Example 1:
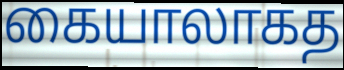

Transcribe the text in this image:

கையாலாகத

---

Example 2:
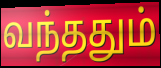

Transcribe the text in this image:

வந்ததும்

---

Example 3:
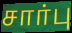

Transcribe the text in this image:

சார்பு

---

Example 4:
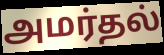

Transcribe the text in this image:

அமர்தல்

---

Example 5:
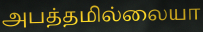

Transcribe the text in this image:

அபத்தமில்லையா